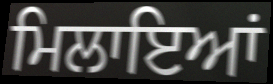
ਮਿਲਾਇਆਂ